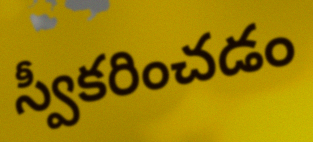
స్వీకరించడం